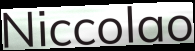
Niccolao